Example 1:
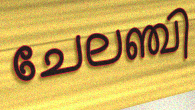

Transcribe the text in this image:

ചേലഞ്ചി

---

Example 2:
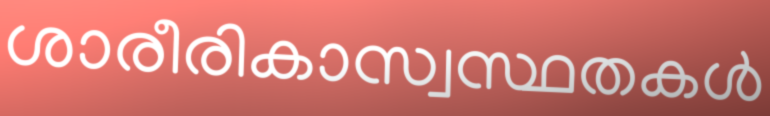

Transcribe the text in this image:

ശാരീരികാസ്വസ്ഥതകൾ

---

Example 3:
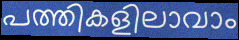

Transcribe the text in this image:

പത്തികളിലാവാം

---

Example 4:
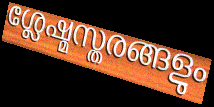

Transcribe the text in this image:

ശ്ലേഷ്മസ്തരങ്ങളും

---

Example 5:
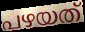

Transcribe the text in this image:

പഴയത്